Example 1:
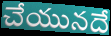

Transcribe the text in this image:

చేయునదే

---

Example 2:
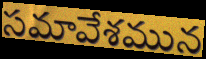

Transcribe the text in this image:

సమావేశమున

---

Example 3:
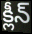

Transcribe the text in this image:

క్లీన్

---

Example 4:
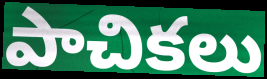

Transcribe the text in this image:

పాచికలు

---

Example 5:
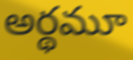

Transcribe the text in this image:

అర్థమూ